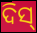
ଦିସ୍